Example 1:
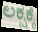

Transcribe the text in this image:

ಲಕ್ಷಕ್ಕೆ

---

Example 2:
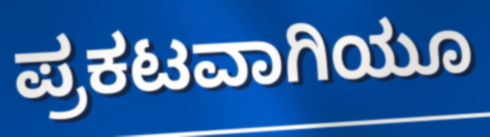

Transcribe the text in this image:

ಪ್ರಕಟವಾಗಿಯೂ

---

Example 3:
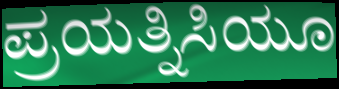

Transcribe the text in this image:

ಪ್ರಯತ್ನಿಸಿಯೂ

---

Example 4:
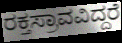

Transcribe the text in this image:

ರಕ್ತಸ್ರಾವವಿದ್ದರೆ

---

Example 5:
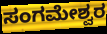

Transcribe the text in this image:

ಸಂಗಮೇಶ್ವರ